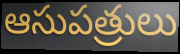
ఆసుపత్రులు